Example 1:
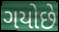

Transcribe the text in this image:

ગયોછે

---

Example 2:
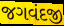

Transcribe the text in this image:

જગવંદજી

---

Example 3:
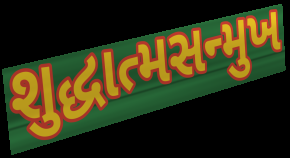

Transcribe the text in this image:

શુદ્ધાત્મસન્મુખ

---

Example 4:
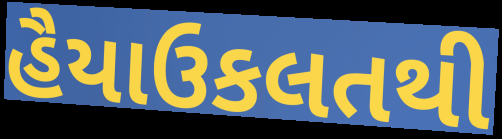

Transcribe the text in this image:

હૈયાઉકલતથી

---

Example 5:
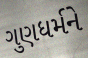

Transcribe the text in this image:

ગુણધર્મને